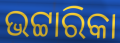
ଭଟ୍ଟାରିକା